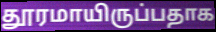
தூரமாயிருப்பதாக